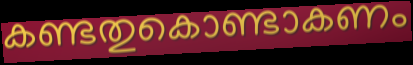
കണ്ടതുകൊണ്ടാകണം